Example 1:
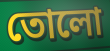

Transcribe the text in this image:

তোলো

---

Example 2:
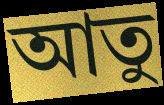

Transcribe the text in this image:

আতু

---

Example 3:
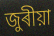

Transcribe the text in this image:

জুৰীয়া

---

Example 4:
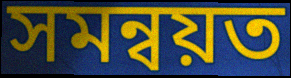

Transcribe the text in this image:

সমন্বয়ত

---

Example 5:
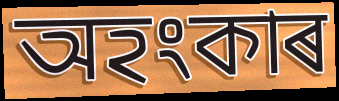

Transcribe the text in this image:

অহংকাৰ